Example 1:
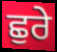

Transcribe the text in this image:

ਛੁਰੇ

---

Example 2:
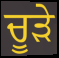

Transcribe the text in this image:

ਚੂੜੇ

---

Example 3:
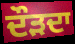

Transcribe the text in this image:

ਦੌੜਦਾ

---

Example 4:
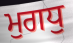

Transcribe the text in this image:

ਮੁਗਧੁ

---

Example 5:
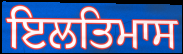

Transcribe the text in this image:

ਇਲਤਿਮਾਸ